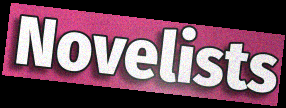
Novelists